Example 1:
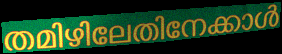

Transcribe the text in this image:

തമിഴിലേതിനേക്കാൾ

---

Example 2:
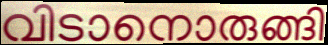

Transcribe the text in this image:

വിടാനൊരുങ്ങി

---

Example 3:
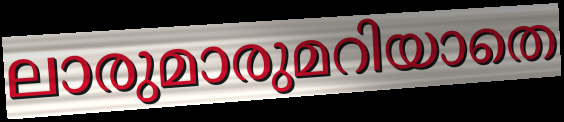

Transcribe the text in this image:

ലാരുമാരുമറിയാതെ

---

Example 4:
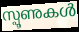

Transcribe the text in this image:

സ്പൂണുകൾ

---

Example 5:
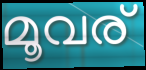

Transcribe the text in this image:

മൂവര്